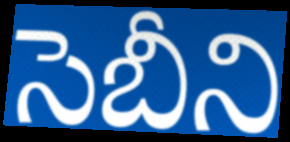
సెబీని